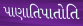
પાણાતિપાતોતિ